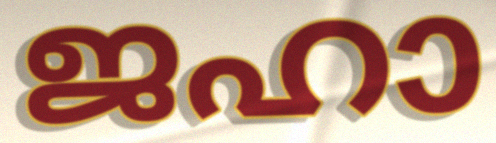
ജഹാ